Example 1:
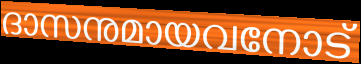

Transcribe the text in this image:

ദാസനുമായവനോട്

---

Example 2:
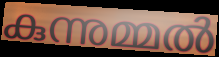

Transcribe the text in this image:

കുന്നുമ്മൽ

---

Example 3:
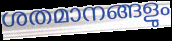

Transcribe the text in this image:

ശതമാനങ്ങളും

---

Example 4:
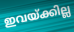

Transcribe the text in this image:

ഇവയ്ക്കില്ല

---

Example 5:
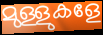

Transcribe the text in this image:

മുള്ളുകളേ